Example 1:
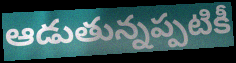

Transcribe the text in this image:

ఆడుతున్నప్పటికీ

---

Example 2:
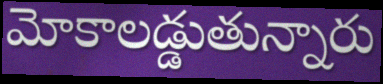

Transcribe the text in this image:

మోకాలడ్డుతున్నారు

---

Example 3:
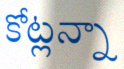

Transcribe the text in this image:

కోట్లన్నా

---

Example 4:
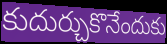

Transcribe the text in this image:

కుదుర్చుకొనేందుకు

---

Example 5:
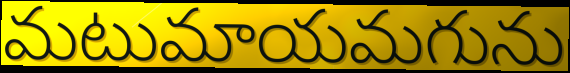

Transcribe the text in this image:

మటుమాయమగును